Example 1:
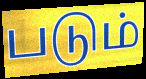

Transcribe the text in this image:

படும்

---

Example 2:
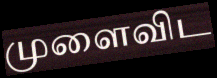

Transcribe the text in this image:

முளைவிட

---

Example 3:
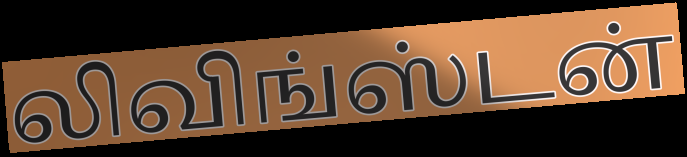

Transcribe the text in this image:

லிவிங்ஸ்டன்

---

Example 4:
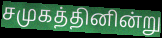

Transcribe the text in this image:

சமுகத்தினின்று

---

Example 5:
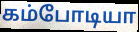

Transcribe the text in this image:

கம்போடியா